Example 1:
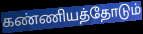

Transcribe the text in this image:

கண்ணியத்தோடும்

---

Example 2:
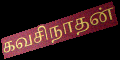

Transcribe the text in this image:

கவசிநாதன்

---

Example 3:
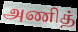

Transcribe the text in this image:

அணித்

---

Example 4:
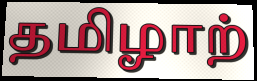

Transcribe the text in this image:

தமிழாற்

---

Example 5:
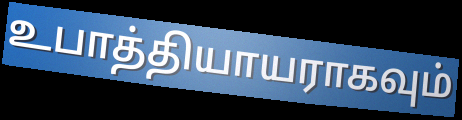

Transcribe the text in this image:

உபாத்தியாயராகவும்